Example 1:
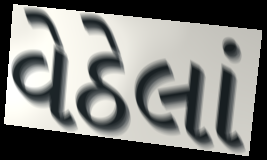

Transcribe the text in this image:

વેઠેલાં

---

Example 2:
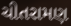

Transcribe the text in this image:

ચીતરામણ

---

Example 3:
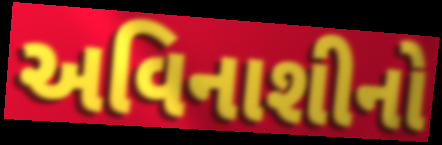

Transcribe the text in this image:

અવિનાશીનો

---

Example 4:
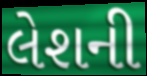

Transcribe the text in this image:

લેશની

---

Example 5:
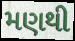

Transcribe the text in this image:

મણથી